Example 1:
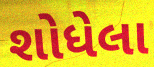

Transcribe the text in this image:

શોધેલા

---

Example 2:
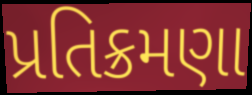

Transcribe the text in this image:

પ્રતિક્રમણા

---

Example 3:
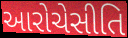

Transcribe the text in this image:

આરોચેસીતિ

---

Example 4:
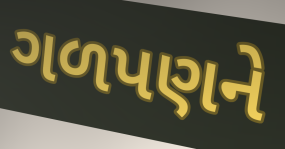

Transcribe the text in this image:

ગળપણને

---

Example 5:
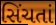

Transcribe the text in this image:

સિંચતાં